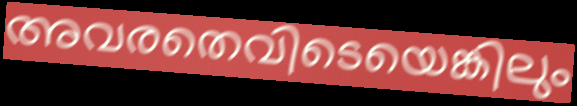
അവരതെവിടെയെങ്കിലും